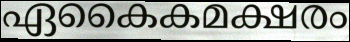
ഏകൈകമക്ഷരം